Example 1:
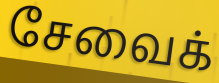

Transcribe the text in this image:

சேவைக்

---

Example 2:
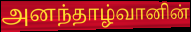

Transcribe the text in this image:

அனந்தாழ்வானின்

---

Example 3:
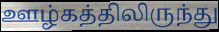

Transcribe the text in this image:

ஊழ்கத்திலிருந்து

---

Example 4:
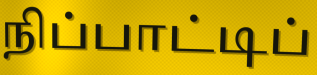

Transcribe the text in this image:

நிப்பாட்டிப்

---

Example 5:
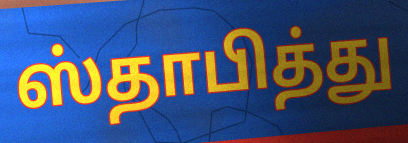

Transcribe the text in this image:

ஸ்தாபித்து